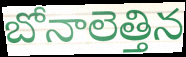
బోనాలెత్తిన